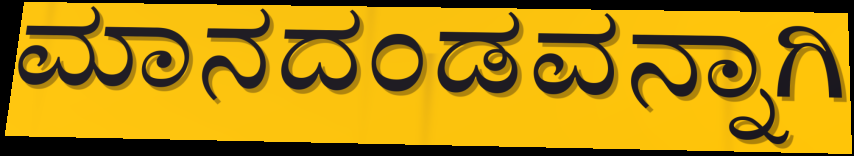
ಮಾನದಂಡವನ್ನಾಗಿ